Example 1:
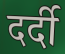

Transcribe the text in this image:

दर्दी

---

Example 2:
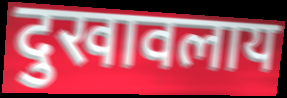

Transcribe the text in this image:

दुखावलाय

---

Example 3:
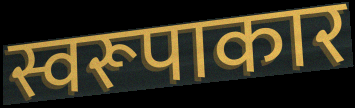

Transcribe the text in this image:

स्वरूपाकार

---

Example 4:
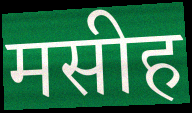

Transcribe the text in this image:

मसीह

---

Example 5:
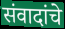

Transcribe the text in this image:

संवादांचे